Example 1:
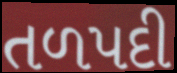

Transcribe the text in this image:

તળપદી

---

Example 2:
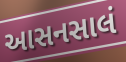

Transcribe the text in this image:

આસનસાલં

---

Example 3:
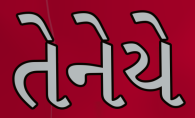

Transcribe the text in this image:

તેનેયે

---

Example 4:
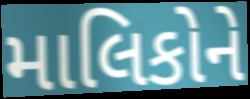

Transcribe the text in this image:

માલિકોને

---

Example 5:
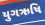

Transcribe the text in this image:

યુગઋષિ